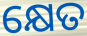
କ୍ଷେତ